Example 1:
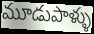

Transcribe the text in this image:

మూడుపాళ్ళు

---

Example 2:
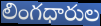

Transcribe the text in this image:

లింగధారుల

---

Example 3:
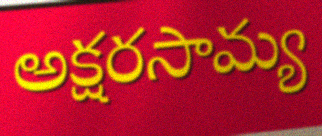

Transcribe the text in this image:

అక్షరసామ్య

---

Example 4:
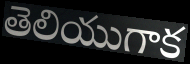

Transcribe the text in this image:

తెలియుగాక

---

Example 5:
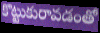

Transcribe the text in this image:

కొట్టుకురావడంతో